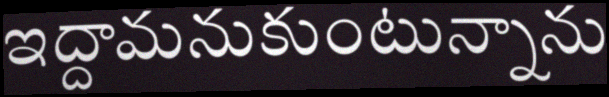
ఇద్దామనుకుంటున్నాను